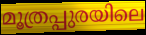
മൂത്രപ്പുരയിലെ